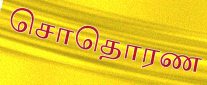
சொதொரண